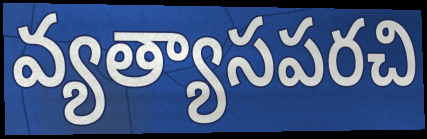
వ్యత్యాసపరచి